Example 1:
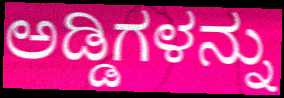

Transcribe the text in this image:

ಅಡ್ಡಿಗಳನ್ನು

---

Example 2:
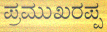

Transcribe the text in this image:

ಪ್ರಮುಖರಪ್ಪ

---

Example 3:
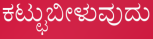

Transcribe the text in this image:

ಕಟ್ಟುಬೀಳುವುದು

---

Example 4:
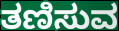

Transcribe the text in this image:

ತಣಿಸುವ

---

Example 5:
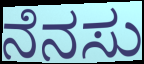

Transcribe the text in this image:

ನೆನಸು